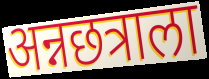
अन्नछत्राला